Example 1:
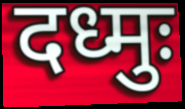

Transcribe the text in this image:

दध्मुः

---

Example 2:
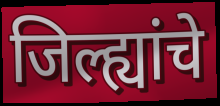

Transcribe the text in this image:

जिल्ह्यांचे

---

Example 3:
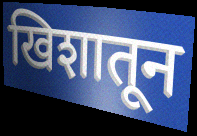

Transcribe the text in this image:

खिशातून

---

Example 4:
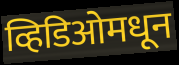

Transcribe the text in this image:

व्हिडिओमधून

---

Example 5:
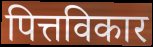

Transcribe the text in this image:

पित्तविकार